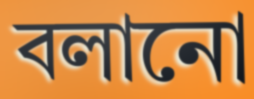
বলানো